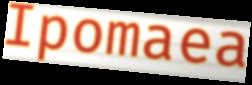
Ipomaea